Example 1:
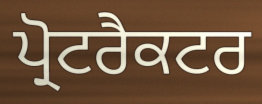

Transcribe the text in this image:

ਪ੍ਰੋਟਰੈਕਟਰ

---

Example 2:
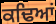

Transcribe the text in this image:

ਕਢਿਆਂ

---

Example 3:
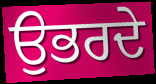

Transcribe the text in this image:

ਉਭਰਦੇ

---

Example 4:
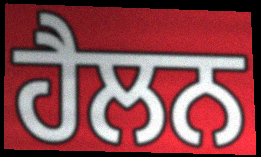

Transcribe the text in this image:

ਹੈਲਨ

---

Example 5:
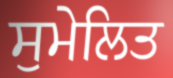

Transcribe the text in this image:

ਸੁਮੇਲਿਤ